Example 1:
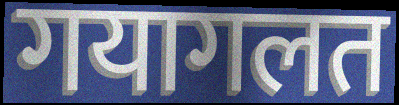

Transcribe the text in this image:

गयागलत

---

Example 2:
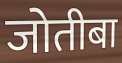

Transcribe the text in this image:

जोतीबा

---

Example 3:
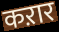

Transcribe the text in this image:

कऱार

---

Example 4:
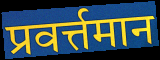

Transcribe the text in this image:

प्रवर्त्तमान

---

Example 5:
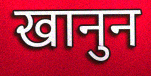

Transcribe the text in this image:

खानुन